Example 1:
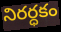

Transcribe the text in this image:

నిరర్ధకం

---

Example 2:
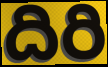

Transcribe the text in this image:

దిరి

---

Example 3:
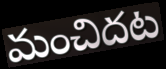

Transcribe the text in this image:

మంచిదట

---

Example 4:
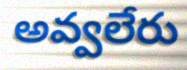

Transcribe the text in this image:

అవ్వలేరు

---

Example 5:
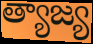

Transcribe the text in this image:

త్యాజ్య